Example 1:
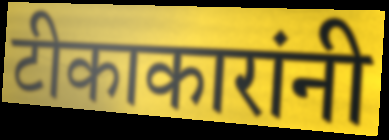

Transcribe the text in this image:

टीकाकारांनी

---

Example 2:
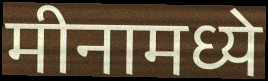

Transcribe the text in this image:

मीनामध्ये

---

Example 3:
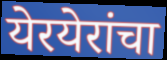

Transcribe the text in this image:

येरयेरांचा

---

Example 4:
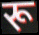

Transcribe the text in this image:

रू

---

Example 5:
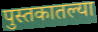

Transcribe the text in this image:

पुस्तकातल्या